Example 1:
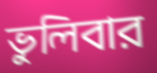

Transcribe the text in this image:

ভুলিবার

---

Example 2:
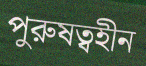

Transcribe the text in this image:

পুরুষত্বহীন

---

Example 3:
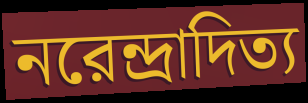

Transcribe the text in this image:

নরেন্দ্রাদিত্য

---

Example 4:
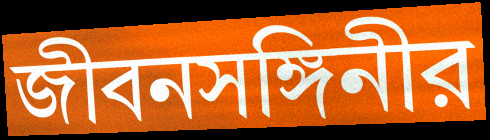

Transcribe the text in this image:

জীবনসঙ্গিনীর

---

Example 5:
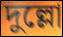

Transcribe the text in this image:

দুল্লো